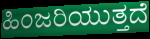
ಹಿಂಜರಿಯುತ್ತದೆ